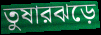
তুষারঝড়ে